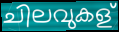
ചിലവുകള്